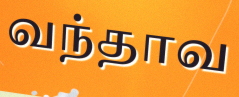
வந்தாவ